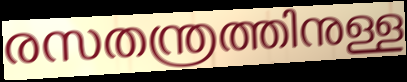
രസതന്ത്രത്തിനുള്ള